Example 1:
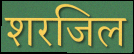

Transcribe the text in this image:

शरजिल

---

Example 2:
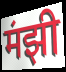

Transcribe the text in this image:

मंझी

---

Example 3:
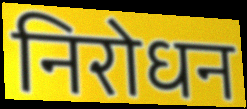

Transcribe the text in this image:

निरोधन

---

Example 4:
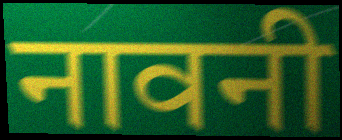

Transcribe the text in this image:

नावनी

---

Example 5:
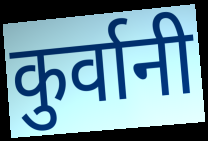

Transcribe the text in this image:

कुर्वानी